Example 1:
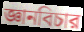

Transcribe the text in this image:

জ্ঞানবিচার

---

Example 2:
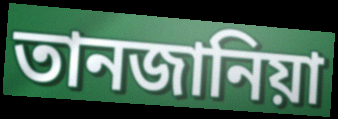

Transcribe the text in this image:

তানজানিয়া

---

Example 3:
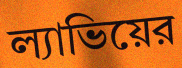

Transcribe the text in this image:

ল্যাভিয়ের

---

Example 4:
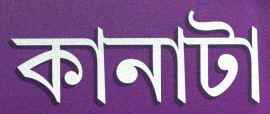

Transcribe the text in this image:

কানাটা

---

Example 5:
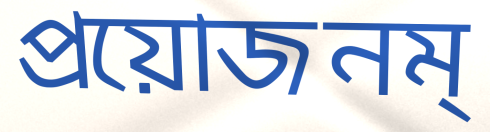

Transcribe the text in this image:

প্রয়োজনম্